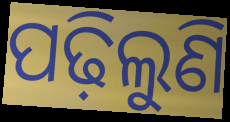
ପଢ଼ିଲୁଣି